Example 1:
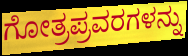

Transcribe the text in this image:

ಗೋತ್ರಪ್ರವರಗಳನ್ನು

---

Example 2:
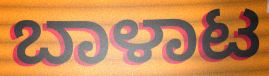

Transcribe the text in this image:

ಬಾಳಾಟ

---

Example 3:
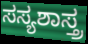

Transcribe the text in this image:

ಸಸ್ಯಶಾಸ್ತ್ರ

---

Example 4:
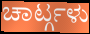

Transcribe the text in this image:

ಚಾರ್ಟ್ಗಳು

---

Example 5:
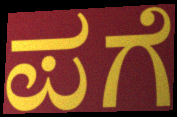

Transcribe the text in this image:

ಪಗೆ